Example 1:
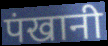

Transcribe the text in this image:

पंखानी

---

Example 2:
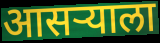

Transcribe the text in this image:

आसऱ्याला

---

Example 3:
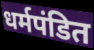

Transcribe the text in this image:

धर्मपंडित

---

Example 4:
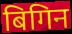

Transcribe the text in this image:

बिगिन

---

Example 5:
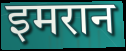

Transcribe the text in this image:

इमरान